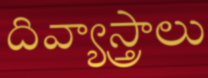
దివ్యాస్త్రాలు